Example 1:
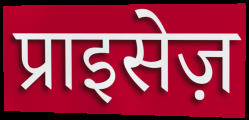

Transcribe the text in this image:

प्राइसेज़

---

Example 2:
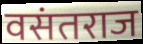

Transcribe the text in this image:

वसंतराज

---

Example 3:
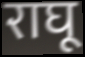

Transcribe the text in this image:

राघू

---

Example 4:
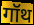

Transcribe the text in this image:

गॉथ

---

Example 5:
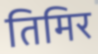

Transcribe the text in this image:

तिमिर